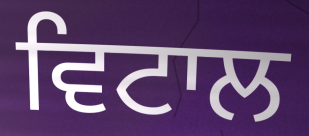
ਵਿਟਾਲ